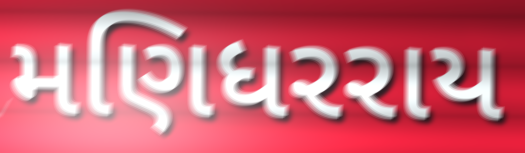
મણિધરરાય